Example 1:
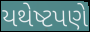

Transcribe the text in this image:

યથેષ્ટપણે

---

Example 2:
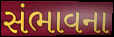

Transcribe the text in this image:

સંભાવના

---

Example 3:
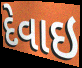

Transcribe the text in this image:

દેવાઇ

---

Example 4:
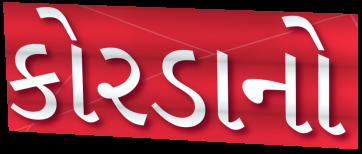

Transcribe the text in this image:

કોરડાનો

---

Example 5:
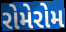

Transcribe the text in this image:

રોમેરોમ